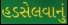
હડસેલવાનું